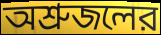
অশ্রুজলের